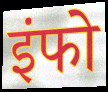
इंफो